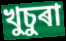
খুচুৰা